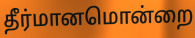
தீர்மானமொன்றை